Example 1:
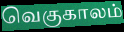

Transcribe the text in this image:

வெகுகாலம்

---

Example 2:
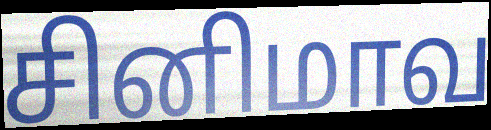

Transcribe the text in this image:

சினிமாவ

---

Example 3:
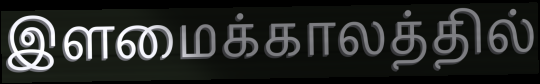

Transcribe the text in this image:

இளமைக்காலத்தில்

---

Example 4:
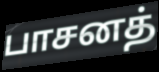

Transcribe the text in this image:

பாசனத்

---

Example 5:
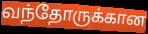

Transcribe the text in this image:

வந்தோருக்கான